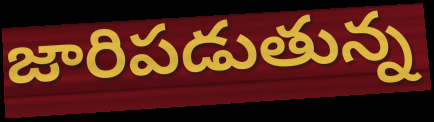
జారిపడుతున్న